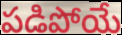
పడిపోయే